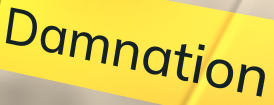
Damnation